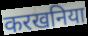
करखनिया